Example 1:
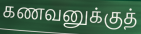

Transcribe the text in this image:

கணவனுக்குத்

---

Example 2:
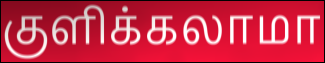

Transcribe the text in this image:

குளிக்கலாமா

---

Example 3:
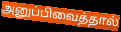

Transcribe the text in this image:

அனுப்பிவைத்தால்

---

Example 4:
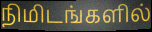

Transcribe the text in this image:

நிமிடங்களில்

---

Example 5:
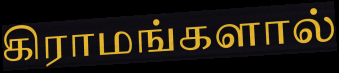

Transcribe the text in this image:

கிராமங்களால்